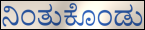
ನಿಂತುಕೊಂಡು